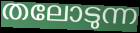
തലോടുന്ന